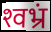
श्वभ्रं